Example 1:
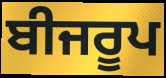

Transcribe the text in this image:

ਬੀਜਰੂਪ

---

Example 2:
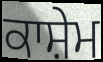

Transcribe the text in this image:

ਕਾਸ਼ੇਮ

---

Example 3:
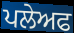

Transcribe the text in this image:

ਪਲੇਅਫ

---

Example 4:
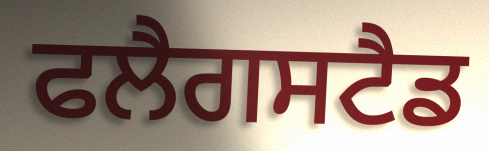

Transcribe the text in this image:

ਫਲੈਗਸਟੈਡ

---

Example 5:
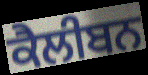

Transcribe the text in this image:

ਕੈਲੀਬਨ